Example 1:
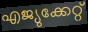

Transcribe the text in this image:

എജ്യുക്കേറ്റ്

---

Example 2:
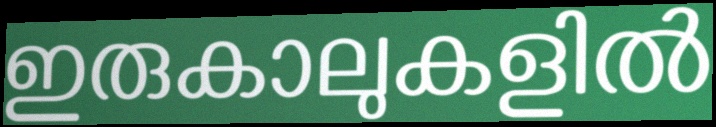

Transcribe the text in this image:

ഇരുകാലുകളിൽ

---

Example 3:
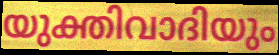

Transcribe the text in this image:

യുക്തിവാദിയും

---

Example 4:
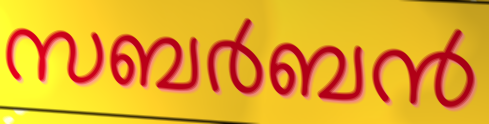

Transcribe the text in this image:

സബർബൻ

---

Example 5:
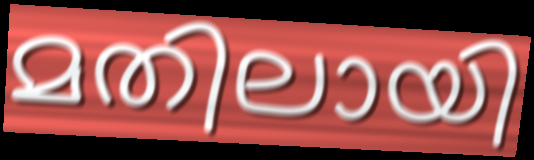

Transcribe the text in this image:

മതിലായി